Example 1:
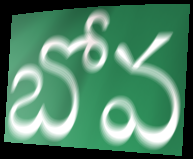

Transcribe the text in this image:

బోవ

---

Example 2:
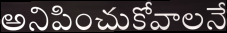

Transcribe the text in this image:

అనిపించుకోవాలనే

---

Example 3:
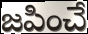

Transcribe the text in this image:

జపించే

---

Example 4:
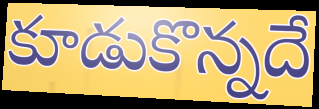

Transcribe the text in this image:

కూడుకొన్నదే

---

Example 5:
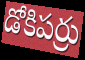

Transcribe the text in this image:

డోకిపర్రు